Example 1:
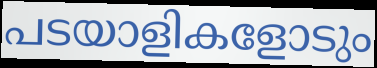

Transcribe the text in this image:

പടയാളികളോടും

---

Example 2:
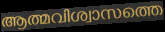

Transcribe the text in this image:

ആത്മവിശ്വാസത്തെ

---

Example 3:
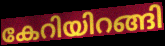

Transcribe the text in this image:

കേറിയിറങ്ങി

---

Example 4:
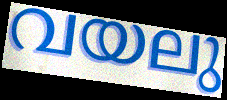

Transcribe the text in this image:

വയലു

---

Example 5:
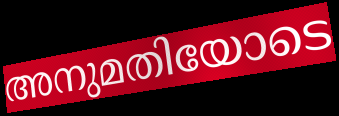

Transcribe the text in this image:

അനുമതിയോടെ